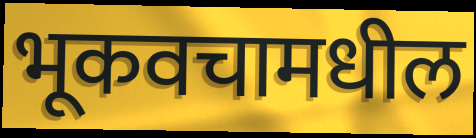
भूकवचामधील